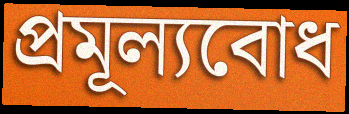
প্ৰমূল্যবোধ